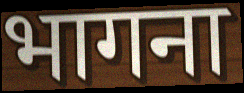
भागना